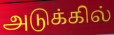
அடுக்கில்